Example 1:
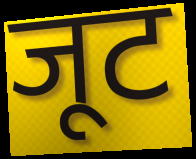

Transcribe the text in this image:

जूट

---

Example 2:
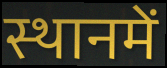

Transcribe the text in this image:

स्थानमें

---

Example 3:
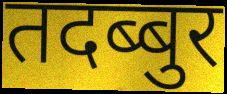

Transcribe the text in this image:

तदब्बुर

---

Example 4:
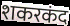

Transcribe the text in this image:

शकरकंद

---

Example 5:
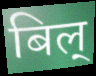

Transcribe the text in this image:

बिल्